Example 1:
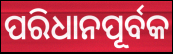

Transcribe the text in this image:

ପରିଧାନପୂର୍ବକ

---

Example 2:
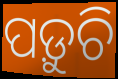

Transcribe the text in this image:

ପଡ଼ୁଚି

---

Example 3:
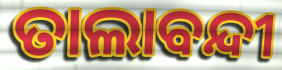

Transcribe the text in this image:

ତାଲାବନ୍ଦୀ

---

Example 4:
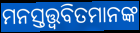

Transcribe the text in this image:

ମନସ୍ତତ୍ତ୍ୱବିତମାନଙ୍କ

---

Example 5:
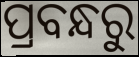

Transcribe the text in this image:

ପ୍ରବନ୍ଧରୁ